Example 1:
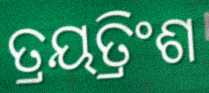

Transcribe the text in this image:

ତ୍ରୟତ୍ରିଂଶ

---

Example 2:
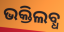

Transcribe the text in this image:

ଭକ୍ତିଲବ୍ଧ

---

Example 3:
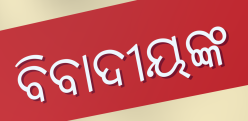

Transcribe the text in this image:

ବିବାଦୀୟଙ୍କ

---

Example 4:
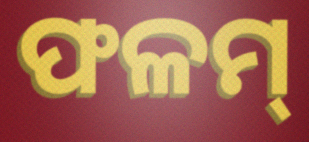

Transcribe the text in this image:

ଫଳମ୍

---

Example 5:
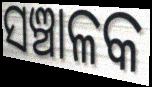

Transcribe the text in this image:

ସଞ୍ଚାଳକ